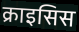
क्राइसिस